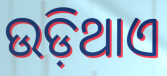
ଉଡ଼ିଥାଏ